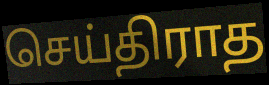
செய்திராத